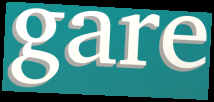
gare